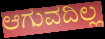
ಆಗುವದಿಲ್ಲ